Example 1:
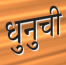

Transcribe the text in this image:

धुनुची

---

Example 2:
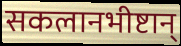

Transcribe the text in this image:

सकलानभीष्टान्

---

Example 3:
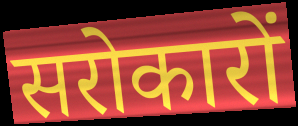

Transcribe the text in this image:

सरोकारों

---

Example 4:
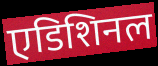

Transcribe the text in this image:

एडिशिनल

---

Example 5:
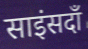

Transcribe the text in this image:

साइंसदाँ